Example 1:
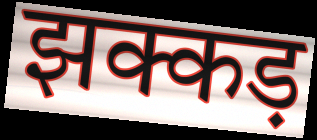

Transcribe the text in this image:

झक्कड़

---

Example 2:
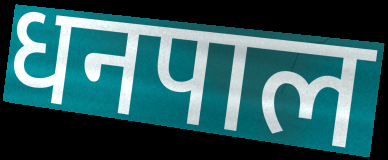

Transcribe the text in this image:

धनपाल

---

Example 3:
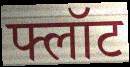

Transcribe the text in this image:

फ्लॉट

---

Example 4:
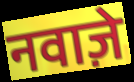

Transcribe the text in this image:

नवाज़े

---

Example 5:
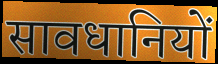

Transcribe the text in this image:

सावधानियों